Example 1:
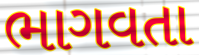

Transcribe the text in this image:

ભાગવતા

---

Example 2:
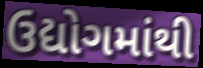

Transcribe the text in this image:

ઉદ્યોગમાંથી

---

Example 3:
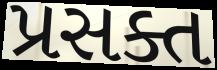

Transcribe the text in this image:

પ્રસક્ત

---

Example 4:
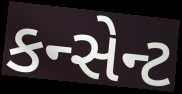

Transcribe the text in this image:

કન્સેન્ટ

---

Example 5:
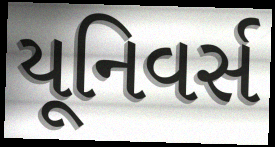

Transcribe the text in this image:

યૂનિવર્સ